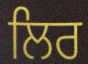
ਲਿਰ